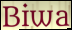
Biwa